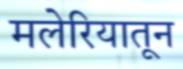
मलेरियातून